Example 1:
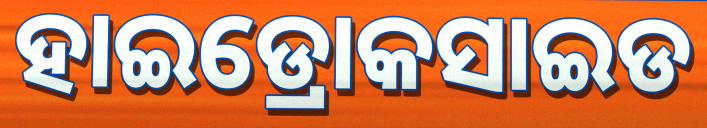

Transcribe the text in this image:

ହାଇଡ୍ରୋକସାଇଡ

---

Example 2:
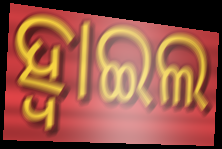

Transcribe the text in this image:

ହ୍ବାଇଲ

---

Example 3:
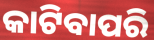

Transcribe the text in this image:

କାଟିବାପରି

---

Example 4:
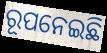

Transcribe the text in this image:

ରୂପନେଇଛି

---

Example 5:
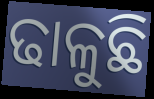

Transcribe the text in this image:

ଢାଳୁଛି